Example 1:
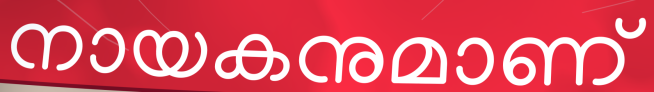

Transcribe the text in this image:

നായകനുമാണ്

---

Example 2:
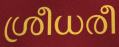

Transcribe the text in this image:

ശ്രീധരീ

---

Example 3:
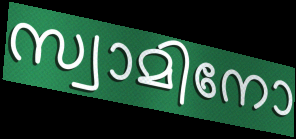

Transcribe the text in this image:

സ്വാമിനോ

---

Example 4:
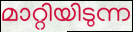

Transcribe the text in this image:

മാറ്റിയിടുന്ന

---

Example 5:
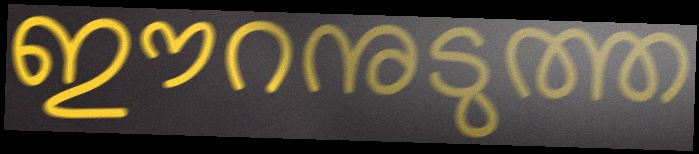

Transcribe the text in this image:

ഈറനുടുത്ത